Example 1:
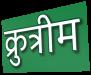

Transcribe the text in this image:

क्रुत्रीम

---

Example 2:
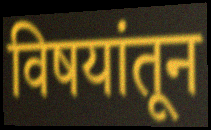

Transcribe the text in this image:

विषयांतून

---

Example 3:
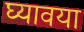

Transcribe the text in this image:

घ्यावया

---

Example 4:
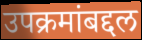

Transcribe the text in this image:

उपक्रमांबद्दल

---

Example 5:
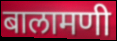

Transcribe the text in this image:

बालामणी